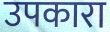
उपकारा